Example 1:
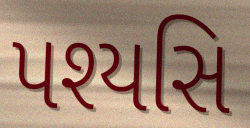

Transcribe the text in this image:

પશ્યસિ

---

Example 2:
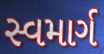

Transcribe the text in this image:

સ્વમાર્ગ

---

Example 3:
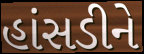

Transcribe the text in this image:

હાંસડીને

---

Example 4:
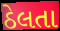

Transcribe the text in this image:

ઠેલતા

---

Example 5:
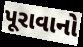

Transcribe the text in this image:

પૂરાવાનો